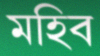
মহিব